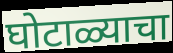
घोटाळ्याचा